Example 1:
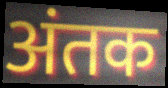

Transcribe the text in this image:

अंतक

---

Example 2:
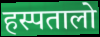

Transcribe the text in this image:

हस्पतालो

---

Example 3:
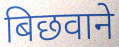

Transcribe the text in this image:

बिछवाने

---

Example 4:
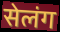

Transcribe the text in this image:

सेलंग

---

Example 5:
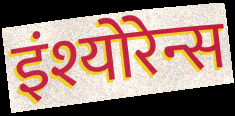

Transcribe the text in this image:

इंश्योरेन्स